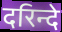
दरिन्दे